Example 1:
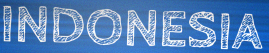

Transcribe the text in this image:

INDONESIA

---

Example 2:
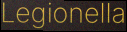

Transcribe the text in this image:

Legionella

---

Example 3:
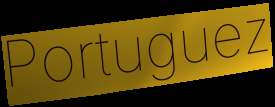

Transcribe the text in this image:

Portuguez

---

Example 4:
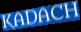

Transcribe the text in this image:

KADACH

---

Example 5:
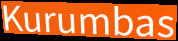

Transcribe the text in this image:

Kurumbas